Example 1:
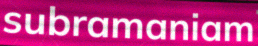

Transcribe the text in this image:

subramaniam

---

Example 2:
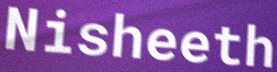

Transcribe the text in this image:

Nisheeth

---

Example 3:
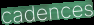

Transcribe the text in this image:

cadences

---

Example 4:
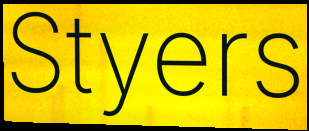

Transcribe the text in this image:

Styers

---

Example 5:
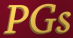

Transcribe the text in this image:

PGs